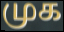
முக